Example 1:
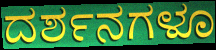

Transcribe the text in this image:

ದರ್ಶನಗಳೂ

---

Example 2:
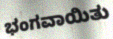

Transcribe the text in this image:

ಭಂಗವಾಯಿತು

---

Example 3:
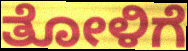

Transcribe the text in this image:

ತೋಳಿಗೆ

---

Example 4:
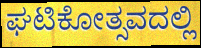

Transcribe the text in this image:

ಘಟಿಕೋತ್ಸವದಲ್ಲಿ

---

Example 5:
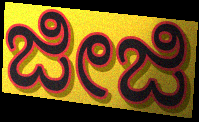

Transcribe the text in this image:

ಜೀಜಿ